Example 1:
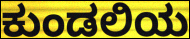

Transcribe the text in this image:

ಕುಂಡಲಿಯ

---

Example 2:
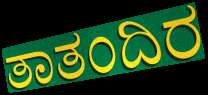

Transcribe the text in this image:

ತಾತಂದಿರ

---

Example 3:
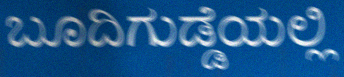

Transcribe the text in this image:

ಬೂದಿಗುಡ್ಡೆಯಲ್ಲಿ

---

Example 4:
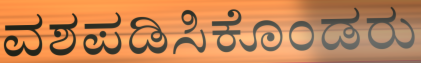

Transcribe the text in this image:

ವಶಪಡಿಸಿಕೊಂಡರು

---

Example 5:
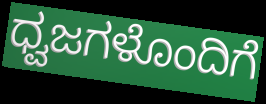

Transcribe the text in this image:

ಧ್ವಜಗಳೊಂದಿಗೆ